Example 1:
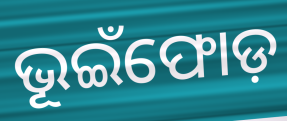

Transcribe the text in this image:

ଭୂଇଁଫୋଡ଼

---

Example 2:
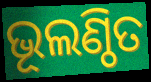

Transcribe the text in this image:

ଭୂଲଣ୍ଠିତ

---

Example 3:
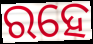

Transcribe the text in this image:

ରହେ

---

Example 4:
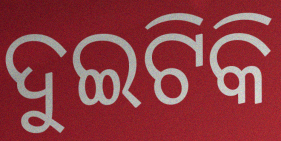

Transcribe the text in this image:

ଦୁଇଟିକି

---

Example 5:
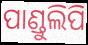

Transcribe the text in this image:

ପାଣ୍ଡୁଲିପି